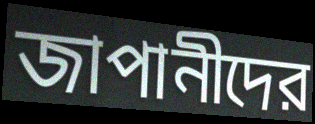
জাপানীদের